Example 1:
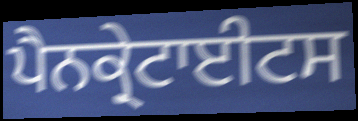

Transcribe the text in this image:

ਪੈਨਕ੍ਰੇਟਾਈਟਸ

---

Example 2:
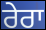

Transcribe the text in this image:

ਰੇਰਾ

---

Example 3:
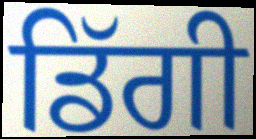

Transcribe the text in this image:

ਡਿੱਗੀ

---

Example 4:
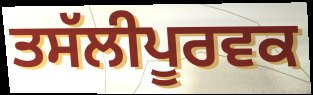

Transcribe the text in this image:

ਤਸੱਲੀਪੂਰਵਕ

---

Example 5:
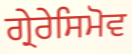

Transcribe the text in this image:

ਗ੍ਰੇਰੇਸਿਮੋਵ